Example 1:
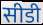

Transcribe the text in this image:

सीडी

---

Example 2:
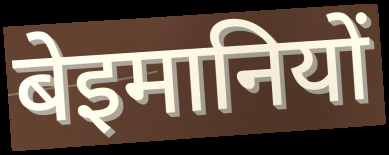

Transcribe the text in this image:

बेइमानियों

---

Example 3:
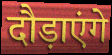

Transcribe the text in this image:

दौड़ाएंगे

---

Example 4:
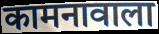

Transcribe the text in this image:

कामनावाला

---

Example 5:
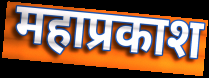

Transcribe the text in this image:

महाप्रकाश